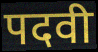
पदवी